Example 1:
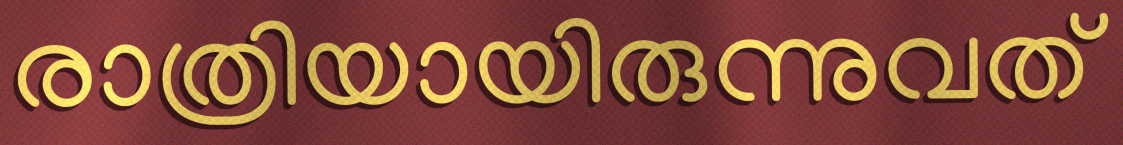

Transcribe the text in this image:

രാത്രിയായിരുന്നുവത്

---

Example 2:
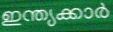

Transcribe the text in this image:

ഇന്ത്യക്കാർ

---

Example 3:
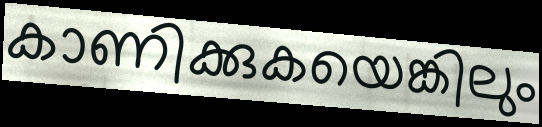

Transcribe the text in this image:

കാണിക്കുകയെങ്കിലും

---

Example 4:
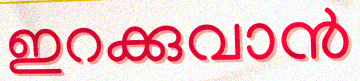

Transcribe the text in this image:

ഇറക്കുവാൻ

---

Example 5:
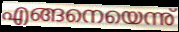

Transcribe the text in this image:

എങ്ങനെയെന്നു്